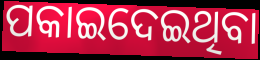
ପକାଇଦେଇଥିବା